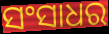
ସଂସାଧର